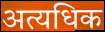
अत्यधिक